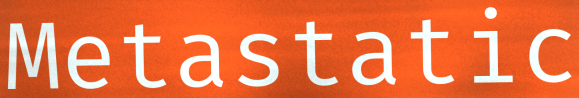
Metastatic